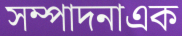
সম্পাদনাএক